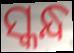
ସ୍କନ୍ଧ